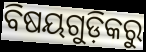
ବିଷୟଗୁଡ଼ିକରୁ